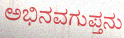
ಅಭಿನವಗುಪ್ತನು